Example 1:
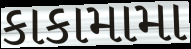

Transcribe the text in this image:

કાકામામા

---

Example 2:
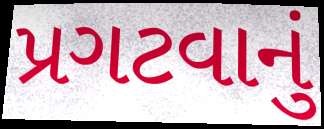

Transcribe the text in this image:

પ્રગટવાનું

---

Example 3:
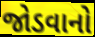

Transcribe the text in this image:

જોડવાનો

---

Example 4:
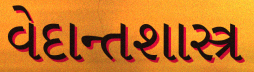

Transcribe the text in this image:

વેદાન્તશાસ્ત્ર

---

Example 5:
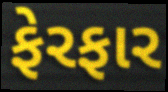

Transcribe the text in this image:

ફેરફાર